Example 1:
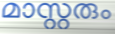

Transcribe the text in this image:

മാസ്റ്റരും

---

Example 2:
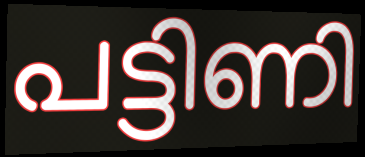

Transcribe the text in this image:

പട്ടിണി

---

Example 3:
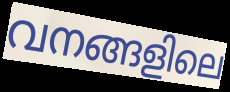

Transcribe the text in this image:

വനങ്ങളിലെ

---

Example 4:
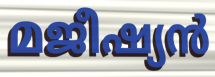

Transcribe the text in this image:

മജീഷ്യൻ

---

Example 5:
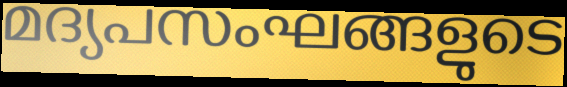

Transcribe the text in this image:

മദ്യപസംഘങ്ങളുടെ